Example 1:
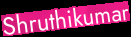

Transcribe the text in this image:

Shruthikumar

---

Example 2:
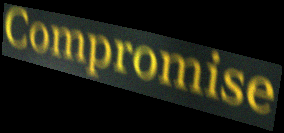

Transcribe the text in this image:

Compromise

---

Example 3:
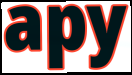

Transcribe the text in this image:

apy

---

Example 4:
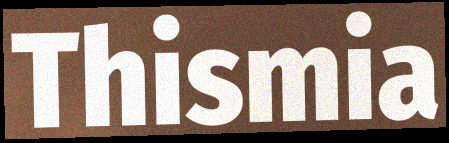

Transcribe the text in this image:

Thismia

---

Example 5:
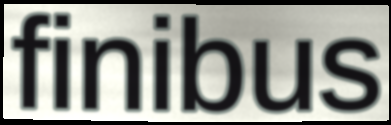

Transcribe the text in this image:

finibus